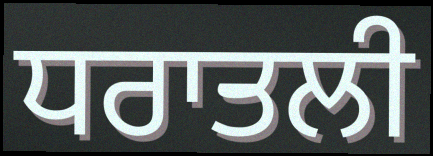
ਧਰਾਤਲੀ